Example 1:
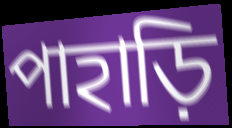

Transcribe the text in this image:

পাহাড়ি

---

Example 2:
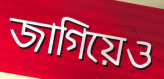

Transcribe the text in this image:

জাগিয়েও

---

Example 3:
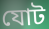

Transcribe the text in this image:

যোট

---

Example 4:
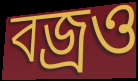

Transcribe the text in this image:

বজ্রও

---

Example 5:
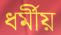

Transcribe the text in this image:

ধর্মীয়